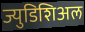
ज्युडिशिअल